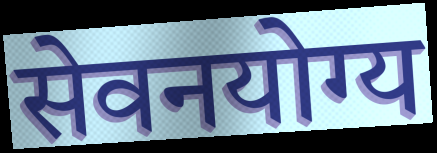
सेवनयोग्य